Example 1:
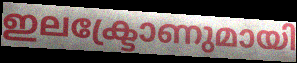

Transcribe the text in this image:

ഇലക്ട്രോണുമായി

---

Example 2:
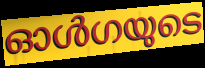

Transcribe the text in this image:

ഓൾഗയുടെ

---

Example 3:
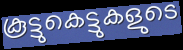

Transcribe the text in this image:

കൂട്ടുകെട്ടുകളുടെ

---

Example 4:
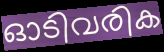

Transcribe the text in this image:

ഓടിവരിക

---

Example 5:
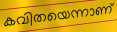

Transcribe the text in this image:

കവിതയെന്നാണ്